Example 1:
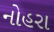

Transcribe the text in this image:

નોહરા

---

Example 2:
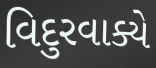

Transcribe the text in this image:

વિદુરવાક્યે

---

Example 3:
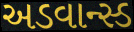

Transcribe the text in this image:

અડવાન્સ્ડ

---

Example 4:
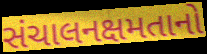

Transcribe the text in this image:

સંચાલનક્ષમતાનો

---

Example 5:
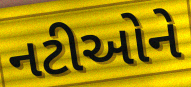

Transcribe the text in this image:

નટીઓને